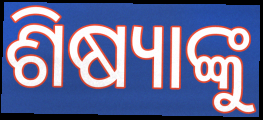
ଶିଷ୍ୟାଙ୍କୁ